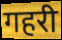
गहरी